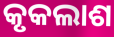
କୃକଲାଶ